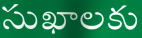
సుఖాలకు